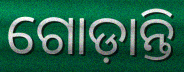
ଗୋଡ଼ାନ୍ତି